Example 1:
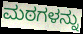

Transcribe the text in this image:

ಮಠಗಳನ್ನು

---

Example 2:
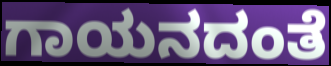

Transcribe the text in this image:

ಗಾಯನದಂತೆ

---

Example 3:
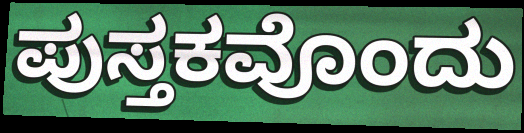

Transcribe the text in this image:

ಪುಸ್ತಕವೊಂದು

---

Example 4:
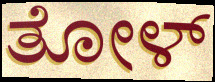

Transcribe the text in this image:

ತೋಳ್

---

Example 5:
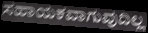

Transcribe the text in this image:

ಸಹಾಯಕವಾಗುವುದಿಲ್ಲ